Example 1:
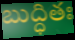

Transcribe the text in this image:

బుద్ధితః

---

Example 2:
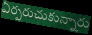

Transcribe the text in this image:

ఏర్పరుచుకున్నారు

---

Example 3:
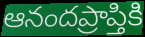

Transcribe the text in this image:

ఆనందప్రాప్తికి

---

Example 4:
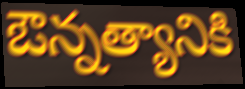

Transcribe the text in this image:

ఔన్నత్యానికి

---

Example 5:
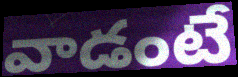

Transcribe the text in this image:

వాడంటే